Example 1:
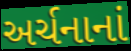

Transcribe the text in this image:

અર્ચનાનાં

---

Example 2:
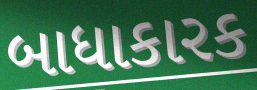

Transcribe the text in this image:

બાધાકારક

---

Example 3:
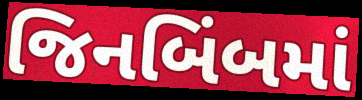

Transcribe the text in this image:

જિનબિંબમાં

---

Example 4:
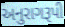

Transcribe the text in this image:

અનુરાગરૂપી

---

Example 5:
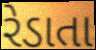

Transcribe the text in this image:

રેડાતા